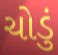
ચોડું